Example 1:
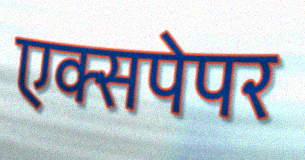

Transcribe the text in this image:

एक्सपेपर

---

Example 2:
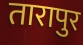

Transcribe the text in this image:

तारापुर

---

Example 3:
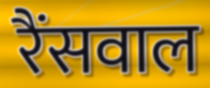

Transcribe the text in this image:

रैंसवाल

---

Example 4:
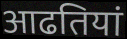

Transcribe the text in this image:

आढतियां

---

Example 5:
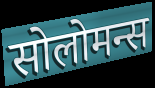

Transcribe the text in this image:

सोलोमन्स